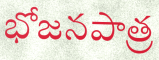
భోజనపాత్ర